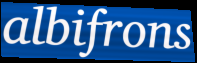
albifrons